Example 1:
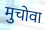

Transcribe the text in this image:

मुचोवा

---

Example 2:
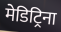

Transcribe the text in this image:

मेडिट्रिना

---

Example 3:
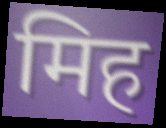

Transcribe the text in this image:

मिह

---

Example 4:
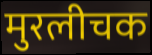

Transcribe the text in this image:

मुरलीचक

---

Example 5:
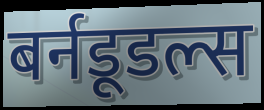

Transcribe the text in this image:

बर्नडूडल्स